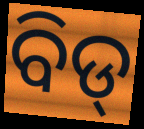
ବିଡ୍